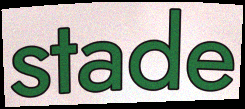
stade